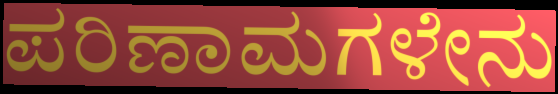
ಪರಿಣಾಮಗಳೇನು